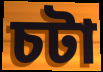
চটা